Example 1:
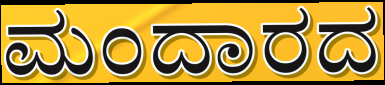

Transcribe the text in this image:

ಮಂದಾರದ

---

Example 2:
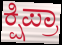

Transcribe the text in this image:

ಕ್ಷಿಪ್ರಾ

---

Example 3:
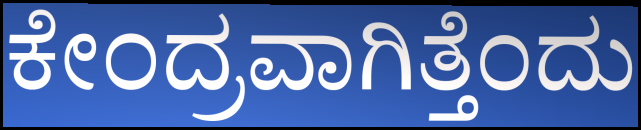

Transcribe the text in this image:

ಕೇಂದ್ರವಾಗಿತ್ತೆಂದು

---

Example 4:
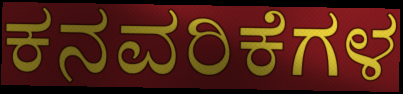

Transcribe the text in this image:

ಕನವರಿಕೆಗಳ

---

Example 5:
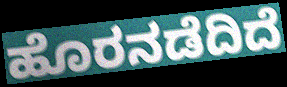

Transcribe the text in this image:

ಹೊರನಡೆದಿದೆ